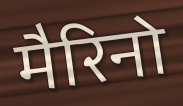
मैरिनो